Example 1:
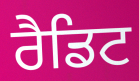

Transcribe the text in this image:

ਰੈਡਿਟ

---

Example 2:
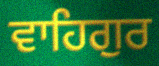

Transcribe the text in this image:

ਵਾਹਿਗੁਰ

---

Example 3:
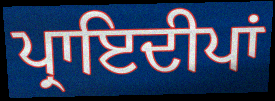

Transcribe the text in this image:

ਪ੍ਰਾਇਦੀਪਾਂ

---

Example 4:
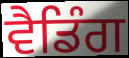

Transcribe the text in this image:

ਵੈਡਿੰਗ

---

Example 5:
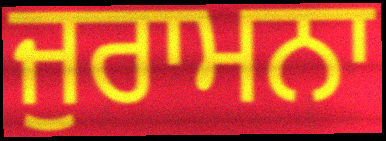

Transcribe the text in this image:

ਜੁਰਾਮਨਾ